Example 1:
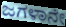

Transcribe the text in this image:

ಜಗಳಾನೇ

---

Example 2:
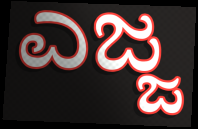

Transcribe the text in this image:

ಎಜ್ಜ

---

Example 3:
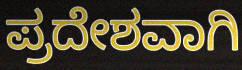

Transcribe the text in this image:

ಪ್ರದೇಶವಾಗಿ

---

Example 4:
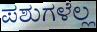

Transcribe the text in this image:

ಪಶುಗಳೆಲ್ಲ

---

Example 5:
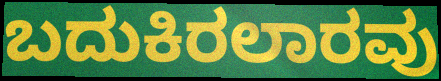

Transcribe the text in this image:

ಬದುಕಿರಲಾರವು